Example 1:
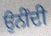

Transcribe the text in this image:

ਉਨੀਂਦੀ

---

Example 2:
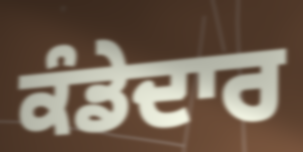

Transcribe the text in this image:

ਕੰਡੇਦਾਰ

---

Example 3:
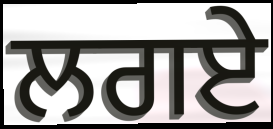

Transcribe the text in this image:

ਲਗਏ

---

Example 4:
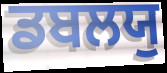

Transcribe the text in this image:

ਡਬਲਯੁ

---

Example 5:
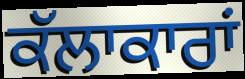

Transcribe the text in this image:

ਕੱਲਾਕਾਰਾਂ